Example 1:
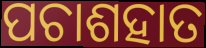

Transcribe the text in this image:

ପଚାଶହାତ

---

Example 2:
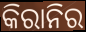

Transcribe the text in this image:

କିରାନିର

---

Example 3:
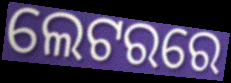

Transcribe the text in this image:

ଲେଟରରେ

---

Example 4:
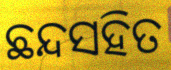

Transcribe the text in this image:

ଛନ୍ଦସହିତ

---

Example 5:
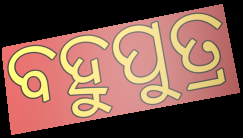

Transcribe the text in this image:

ବହୁପୁତ୍ର